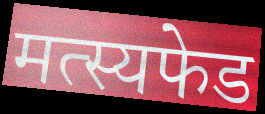
मत्स्यफेड